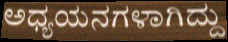
ಅಧ್ಯಯನಗಳಾಗಿದ್ದು